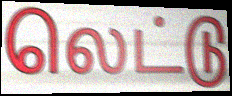
லெட்டு